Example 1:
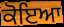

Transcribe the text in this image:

ਕੋਇਆ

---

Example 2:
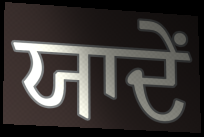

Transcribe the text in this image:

ਯਾਦੇਂ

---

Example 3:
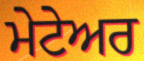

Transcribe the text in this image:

ਮੇਟੇਅਰ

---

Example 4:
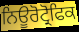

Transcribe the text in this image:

ਨਿਊਰੋਟ੍ਰੋਫਿਕ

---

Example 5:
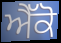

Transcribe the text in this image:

ਐੱਕੋ